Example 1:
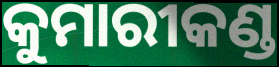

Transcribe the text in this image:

କୁମାରୀକଣ୍ଡ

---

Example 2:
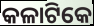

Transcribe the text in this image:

କଳାଟିକେ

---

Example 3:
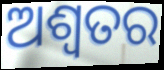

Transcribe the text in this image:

ଅଶ୍ୱତର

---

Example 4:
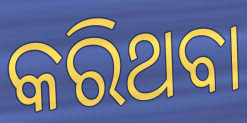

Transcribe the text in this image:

କରିଥବା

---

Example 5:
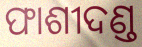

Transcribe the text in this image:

ଫାଶୀଦଣ୍ଡ